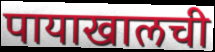
पायाखालची